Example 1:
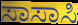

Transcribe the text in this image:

ಸಾಸಾಸಿ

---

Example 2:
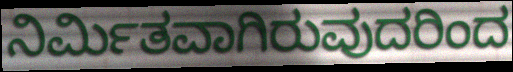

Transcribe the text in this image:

ನಿರ್ಮಿತವಾಗಿರುವುದರಿಂದ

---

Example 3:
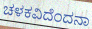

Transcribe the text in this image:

ಚಳಕವಿದೆಂದನಾ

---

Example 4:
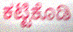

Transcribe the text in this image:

ಕಟ್ಟಿಕೊಡಿ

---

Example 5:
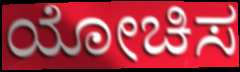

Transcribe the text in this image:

ಯೋಚಿಸ